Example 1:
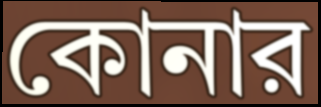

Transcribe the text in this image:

কোনার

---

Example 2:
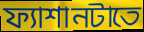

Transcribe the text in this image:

ফ্যাশানটাতে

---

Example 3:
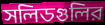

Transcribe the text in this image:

সলিডগুলির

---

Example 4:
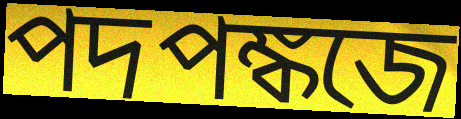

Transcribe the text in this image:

পদপঙ্কজে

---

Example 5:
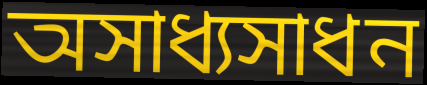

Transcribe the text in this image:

অসাধ্যসাধন